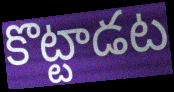
కొట్టాడట